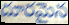
దూరమైన